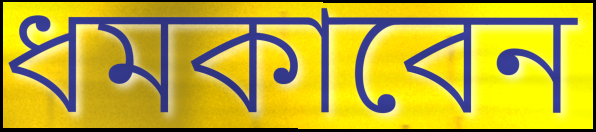
ধমকাবেন